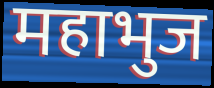
महाभुज